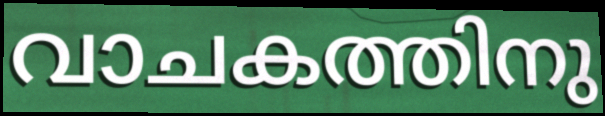
വാചകത്തിനു